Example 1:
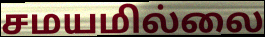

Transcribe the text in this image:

சமயமில்லை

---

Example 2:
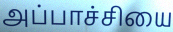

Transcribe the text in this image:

அப்பாச்சியை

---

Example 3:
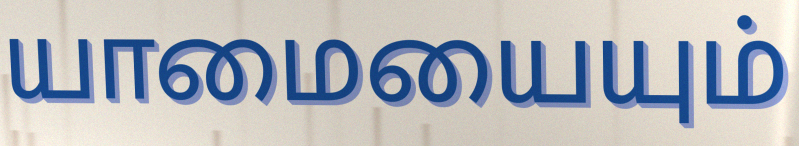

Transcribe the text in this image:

யாமையையும்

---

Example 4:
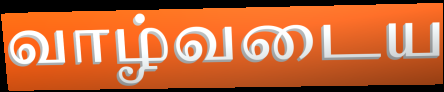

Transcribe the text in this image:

வாழ்வடைய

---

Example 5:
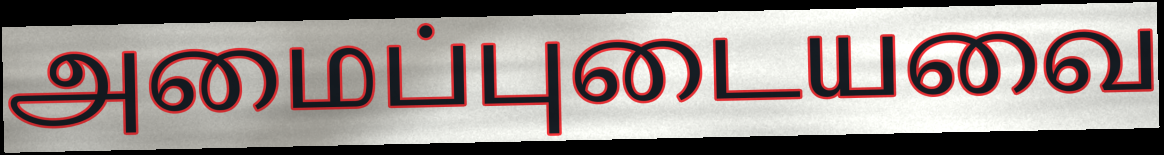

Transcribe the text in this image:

அமைப்புடையவை